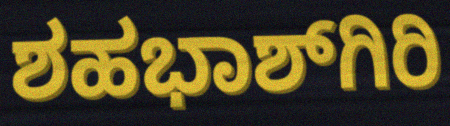
ಶಹಭಾಶ್‌ಗಿರಿ